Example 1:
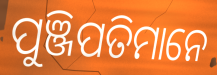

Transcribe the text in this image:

ପୁଞ୍ଜିପତିମାନେ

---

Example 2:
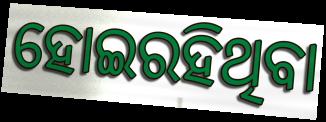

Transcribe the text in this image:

ହୋଇରହିଥିବା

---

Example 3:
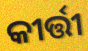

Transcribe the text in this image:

କୀର୍ତ୍ତୀ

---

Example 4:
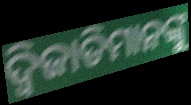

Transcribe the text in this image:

ଦ୍ୱିଜାତିମାନଙ୍କୁ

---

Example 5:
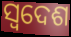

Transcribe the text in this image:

ସ୍ୱଦେଶ